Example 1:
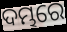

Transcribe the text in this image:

ଦମ୍ଭରେ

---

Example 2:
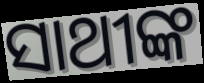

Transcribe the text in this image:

ସାଥୀଙ୍କ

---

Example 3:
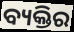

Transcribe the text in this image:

ବ୍ୟକ୍ତିର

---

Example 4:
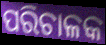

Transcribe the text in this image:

ପରିଚାଳକ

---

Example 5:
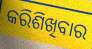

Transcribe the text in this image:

କରିଶିଖିବାର